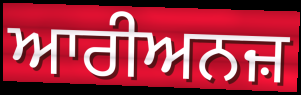
ਆਰੀਅਨਜ਼